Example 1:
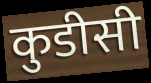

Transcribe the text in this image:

कुडीसी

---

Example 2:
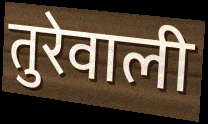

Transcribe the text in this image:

तुरेवाली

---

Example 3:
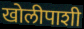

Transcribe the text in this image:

खोलीपाशी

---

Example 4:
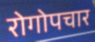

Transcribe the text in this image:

रोगोपचार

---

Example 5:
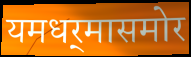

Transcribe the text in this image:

यमधर्मासमोर